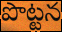
పొట్టన